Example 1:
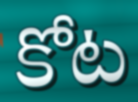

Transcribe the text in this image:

కోట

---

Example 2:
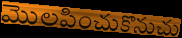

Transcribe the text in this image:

మొలపించుకొనుచు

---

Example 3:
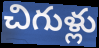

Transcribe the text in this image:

చిగుళ్లు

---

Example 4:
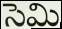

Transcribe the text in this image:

సెమి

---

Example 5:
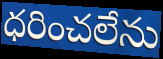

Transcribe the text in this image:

ధరించలేను